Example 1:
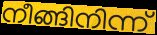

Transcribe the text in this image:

നീങ്ങിനിന്ന്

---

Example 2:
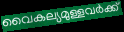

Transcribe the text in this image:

വൈകല്യമുള്ളവർക്ക്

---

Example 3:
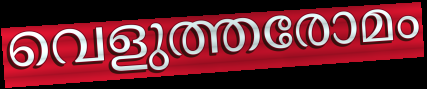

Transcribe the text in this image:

വെളുത്തരോമം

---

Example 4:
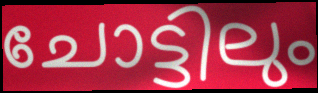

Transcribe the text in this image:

ചോട്ടിലും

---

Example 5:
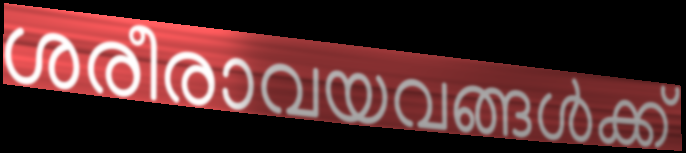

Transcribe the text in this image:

ശരീരാവയവങ്ങൾക്ക്